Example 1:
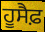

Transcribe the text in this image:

ਹੂਸੈਫ਼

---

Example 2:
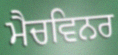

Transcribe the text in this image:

ਮੈਚਵਿਨਰ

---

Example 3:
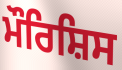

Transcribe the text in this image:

ਮੌਰਿਸ਼ਿਸ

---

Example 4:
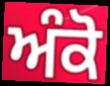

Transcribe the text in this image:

ਅੰਕੋ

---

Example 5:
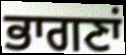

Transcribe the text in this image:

ਭਾਗਣਾਂ